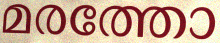
മരത്തോ